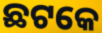
ଛଟକେ